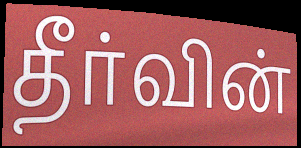
தீர்வின்